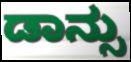
ಡಾನ್ಸು